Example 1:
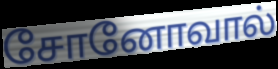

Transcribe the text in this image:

சோனோவால்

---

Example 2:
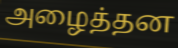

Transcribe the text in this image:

அழைத்தன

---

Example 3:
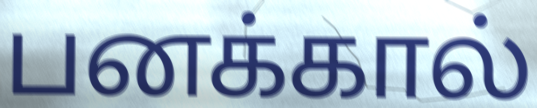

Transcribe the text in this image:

பனக்கால்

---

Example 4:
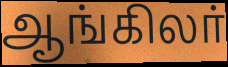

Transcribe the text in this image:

ஆங்கிலர்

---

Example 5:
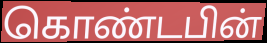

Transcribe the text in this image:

கொண்டபின்